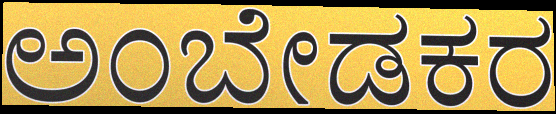
ಅಂಬೇಡಕರ